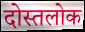
दोस्तलोक